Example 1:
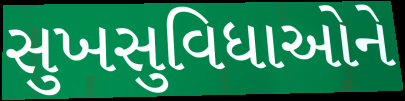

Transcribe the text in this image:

સુખસુવિધાઓને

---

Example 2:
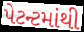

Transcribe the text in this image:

પેટન્ટમાંથી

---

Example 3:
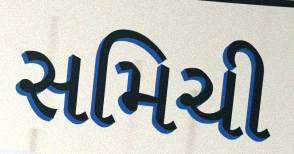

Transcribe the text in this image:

સમિચી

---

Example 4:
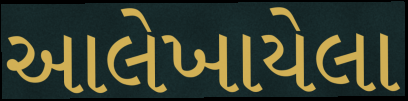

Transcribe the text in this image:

આલેખાયેલા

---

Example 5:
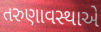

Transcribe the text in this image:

તરુણાવસ્થાએ